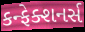
કન્ફેક્શનર્સ